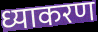
ध्याकरण